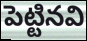
పెట్టినవి